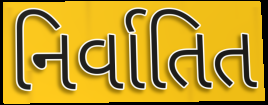
નિર્વાતિત